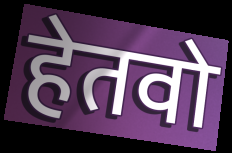
हेतवो